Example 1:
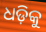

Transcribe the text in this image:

ଧଡ଼ିକୁ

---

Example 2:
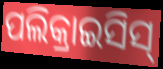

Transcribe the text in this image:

ପଲିକ୍ରାଇସିସ୍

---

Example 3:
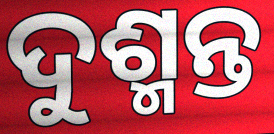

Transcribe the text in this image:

ଦୁଶ୍ମନ୍ତ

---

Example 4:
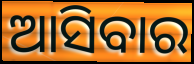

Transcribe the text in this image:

ଆସିବାର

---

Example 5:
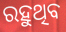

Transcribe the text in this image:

ରହୁଥିବ